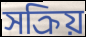
সক্ৰিয়